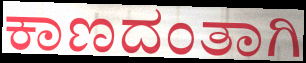
ಕಾಣದಂತಾಗಿ